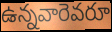
ఉన్నవారెవరూ